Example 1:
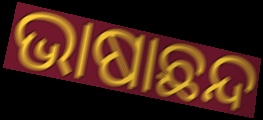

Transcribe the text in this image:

ଭାଷାଛନ୍ଦ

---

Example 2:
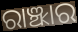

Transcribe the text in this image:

ରାଞ୍ଝାର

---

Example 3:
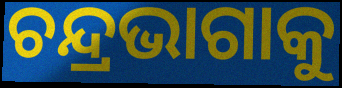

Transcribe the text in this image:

ଚନ୍ଦ୍ରଭାଗାକୁ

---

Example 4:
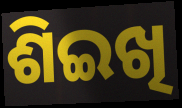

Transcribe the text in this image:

ଶିଇଖି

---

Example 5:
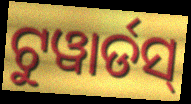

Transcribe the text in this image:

ଟୁୱାର୍ଡସ୍